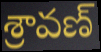
శ్రావణ్